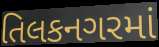
તિલકનગરમાં